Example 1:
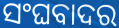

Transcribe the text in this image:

ସଂଘବାଦର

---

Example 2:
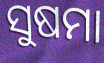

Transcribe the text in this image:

ସୁଷମା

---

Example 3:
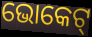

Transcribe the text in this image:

ଭୋକେଟ୍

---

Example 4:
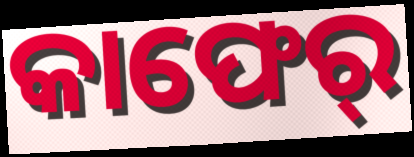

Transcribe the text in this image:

କାଫେର୍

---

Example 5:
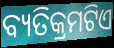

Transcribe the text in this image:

ବ୍ୟତିକ୍ରମଟିଏ